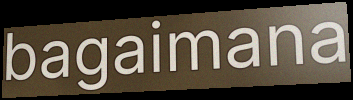
bagaimana